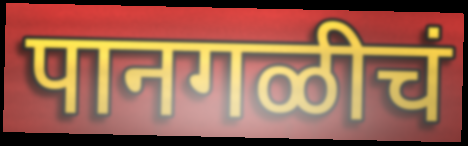
पानगळीचं